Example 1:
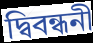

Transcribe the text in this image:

দ্বিবন্ধনী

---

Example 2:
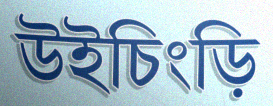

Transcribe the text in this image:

উইচিংড়ি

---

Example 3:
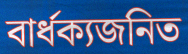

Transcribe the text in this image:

বার্ধক্যজনিত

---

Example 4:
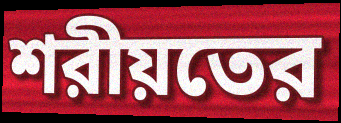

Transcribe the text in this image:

শরীয়তের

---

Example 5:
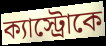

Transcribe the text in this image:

ক্যাস্ট্রোকে